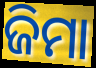
ଜିମା